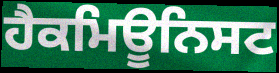
ਹੈਕਮਿਊਨਿਸਟ